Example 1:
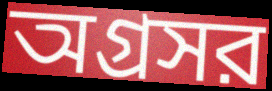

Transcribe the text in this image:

অগ্রসর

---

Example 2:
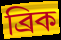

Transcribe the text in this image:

ব্রিক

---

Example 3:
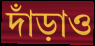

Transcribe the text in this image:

দাঁড়াও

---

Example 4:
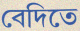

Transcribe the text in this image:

বেদিতে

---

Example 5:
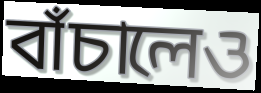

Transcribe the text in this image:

বাঁচালেও